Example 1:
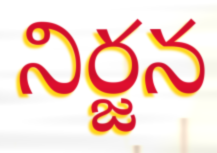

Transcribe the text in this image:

నిర్జన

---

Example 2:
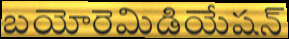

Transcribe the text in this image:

బయోరెమిడియేషన్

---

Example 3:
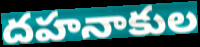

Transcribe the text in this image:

దహనాకుల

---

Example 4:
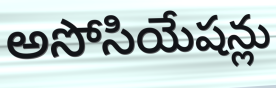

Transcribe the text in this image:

అసోసియేషన్లు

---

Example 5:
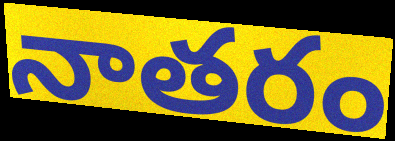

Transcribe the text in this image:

నాతరం